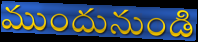
ముందునుండి